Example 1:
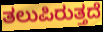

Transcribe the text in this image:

ತಲುಪಿರುತ್ತದೆ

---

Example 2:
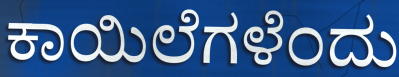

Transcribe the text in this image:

ಕಾಯಿಲೆಗಳೆಂದು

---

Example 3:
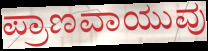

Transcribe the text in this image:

ಪ್ರಾಣವಾಯುವು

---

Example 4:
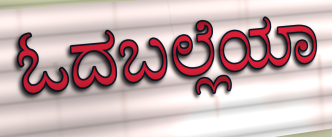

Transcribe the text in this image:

ಓದಬಲ್ಲೆಯಾ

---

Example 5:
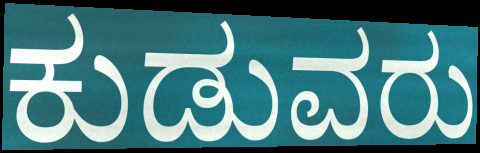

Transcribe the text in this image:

ಕುಡುವರು